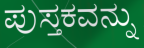
ಪುಸ್ತಕವನ್ನು